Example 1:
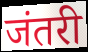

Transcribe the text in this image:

जंतरी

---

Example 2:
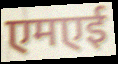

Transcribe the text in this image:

एमएई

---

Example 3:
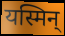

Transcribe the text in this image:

यस्मिन्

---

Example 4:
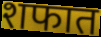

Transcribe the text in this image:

शफात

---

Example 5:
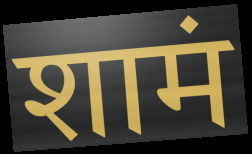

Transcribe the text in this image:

शामं